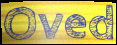
Oved